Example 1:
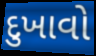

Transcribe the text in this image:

દુખાવો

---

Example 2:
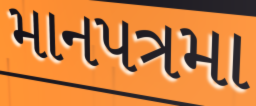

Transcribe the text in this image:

માનપત્રમા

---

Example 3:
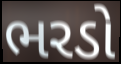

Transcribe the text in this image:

ભરડો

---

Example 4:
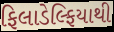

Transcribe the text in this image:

ફિલાડેલ્ફિયાથી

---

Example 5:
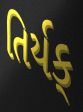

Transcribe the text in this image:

તિર્યક્